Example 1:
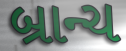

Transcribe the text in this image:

બ્રાન્ચ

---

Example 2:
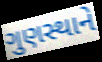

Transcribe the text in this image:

ગુણસ્થાને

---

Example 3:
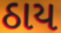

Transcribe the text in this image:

ઠાય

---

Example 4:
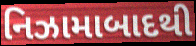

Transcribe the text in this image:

નિઝામાબાદથી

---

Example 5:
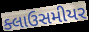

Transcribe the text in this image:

ક્લાઉસમીયર